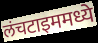
लंचटाइममध्ये